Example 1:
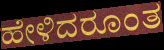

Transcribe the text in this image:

ಹೇಳಿದರೂಂತ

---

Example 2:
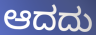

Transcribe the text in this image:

ಆದದು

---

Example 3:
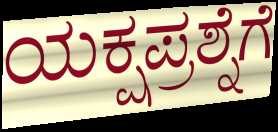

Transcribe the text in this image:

ಯಕ್ಷಪ್ರಶ್ನೆಗೆ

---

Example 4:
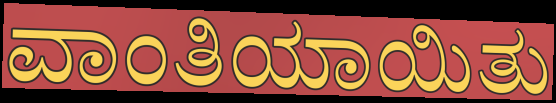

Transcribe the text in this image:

ವಾಂತಿಯಾಯಿತು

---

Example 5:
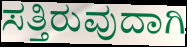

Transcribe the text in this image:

ಸತ್ತಿರುವುದಾಗಿ